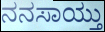
ನನಸಾಯ್ತು